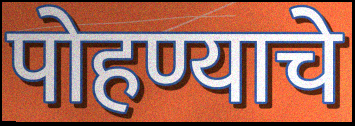
पोहण्याचे